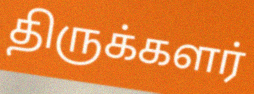
திருக்களர்